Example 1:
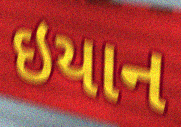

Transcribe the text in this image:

ઇયાન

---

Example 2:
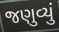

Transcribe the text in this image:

જણુવ્યું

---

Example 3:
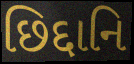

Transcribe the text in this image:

છિદ્દાનિ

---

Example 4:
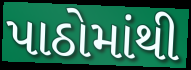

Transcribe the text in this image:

પાઠોમાંથી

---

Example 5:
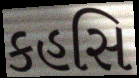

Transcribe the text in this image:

કહસિ